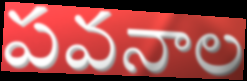
పవనాల